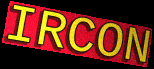
IRCON